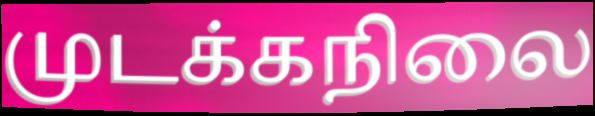
முடக்கநிலை